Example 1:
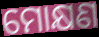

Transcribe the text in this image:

ମୋକ୍ଷଣ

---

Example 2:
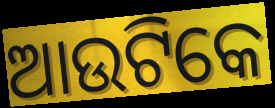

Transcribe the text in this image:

ଆଉଟିକେ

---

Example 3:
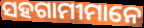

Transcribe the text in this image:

ସହଗାମୀମାନେ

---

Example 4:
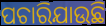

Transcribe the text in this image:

ପଚାରିଯାଉଛି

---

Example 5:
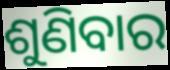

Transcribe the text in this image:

ଶୁଣିବାର